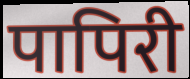
पापिरी